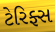
ટેરિફ્સ